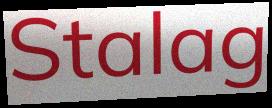
Stalag